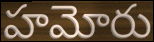
హమోరు